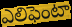
ఎలిఫెంటా